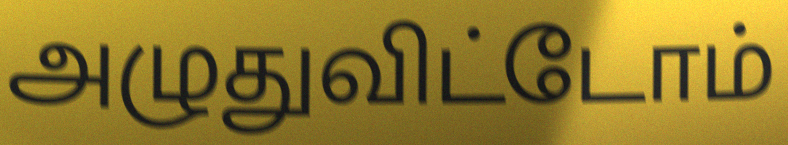
அழுதுவிட்டோம்